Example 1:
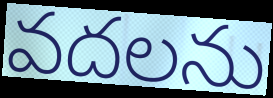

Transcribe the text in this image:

వదలను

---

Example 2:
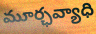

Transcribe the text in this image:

మూర్ఛవ్యాధి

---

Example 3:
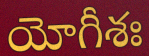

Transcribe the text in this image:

యోగీశః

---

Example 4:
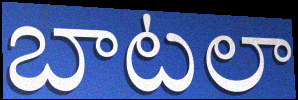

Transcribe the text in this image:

బాటలా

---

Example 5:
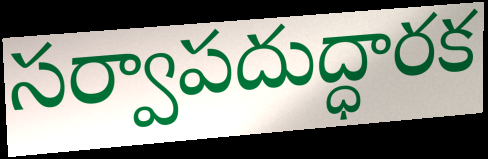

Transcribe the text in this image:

సర్వాపదుద్ధారక